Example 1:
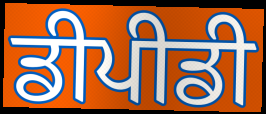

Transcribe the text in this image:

ਡੀਪੀਡੀ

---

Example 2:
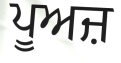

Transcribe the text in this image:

ਪੂਅਜ਼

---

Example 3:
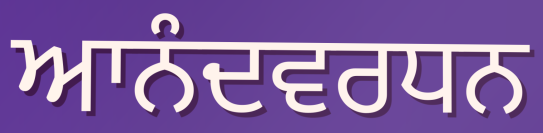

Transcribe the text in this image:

ਆਨੰਦਵਰਧਨ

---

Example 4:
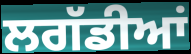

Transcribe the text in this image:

ਲਗੱਡੀਆਂ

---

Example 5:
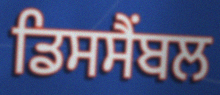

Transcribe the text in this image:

ਡਿਸਸੈਂਬਲ